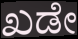
ಖಡೇ